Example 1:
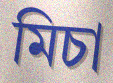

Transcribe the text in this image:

মিচা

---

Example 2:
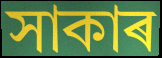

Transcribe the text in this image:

সাকাৰ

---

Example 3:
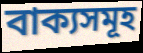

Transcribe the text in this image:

বাক্যসমূহ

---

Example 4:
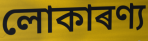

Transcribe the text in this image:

লোকাৰণ্য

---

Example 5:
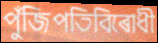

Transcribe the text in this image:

পুঁজিপতিবিৰোধী